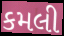
કમલી